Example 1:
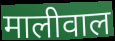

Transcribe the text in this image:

मालीवाल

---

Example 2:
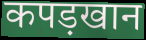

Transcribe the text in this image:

कपड़खान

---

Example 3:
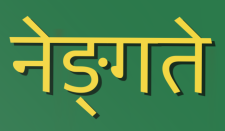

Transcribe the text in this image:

नेङ्गते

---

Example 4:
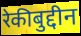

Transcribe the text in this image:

रेकीबुद्दीन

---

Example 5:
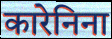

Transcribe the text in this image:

कारेनिना